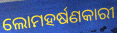
ଲୋମହର୍ଷଣକାରୀ